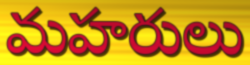
మహరులు